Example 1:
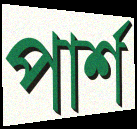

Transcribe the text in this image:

পার্শ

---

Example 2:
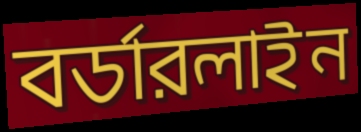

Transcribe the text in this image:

বর্ডারলাইন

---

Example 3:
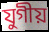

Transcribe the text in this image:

যুগীয়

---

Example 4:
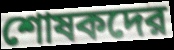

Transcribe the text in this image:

শোষকদের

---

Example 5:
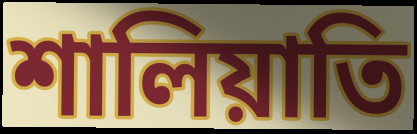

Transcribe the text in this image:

শালিয়াতি